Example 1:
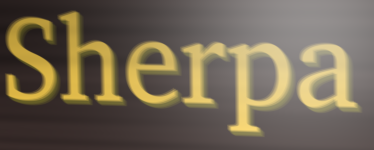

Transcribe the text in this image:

Sherpa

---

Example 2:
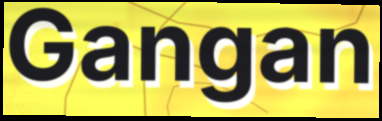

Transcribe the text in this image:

Gangan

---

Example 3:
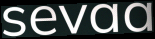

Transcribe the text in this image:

sevaa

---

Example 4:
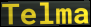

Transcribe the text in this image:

Telma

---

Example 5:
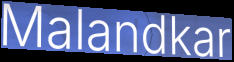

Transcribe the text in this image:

Malandkar